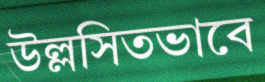
উল্লসিতভাবে